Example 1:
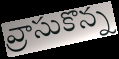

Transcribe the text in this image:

వ్రాసుకొన్న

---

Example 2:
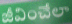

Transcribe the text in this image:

జీవించేలా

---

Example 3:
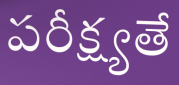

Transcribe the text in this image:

పరీక్ష్యతే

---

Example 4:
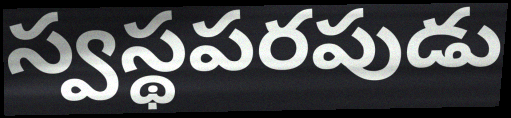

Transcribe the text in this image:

స్వస్థపరపుడు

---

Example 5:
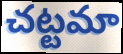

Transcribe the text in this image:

చట్టమా